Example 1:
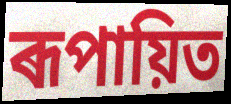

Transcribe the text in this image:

ৰূপায়িত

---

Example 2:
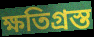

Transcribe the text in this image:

ক্ষতিগ্ৰস্ত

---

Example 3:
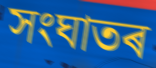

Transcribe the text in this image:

সংঘাতৰ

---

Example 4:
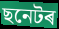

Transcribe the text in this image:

ছনেটৰ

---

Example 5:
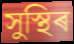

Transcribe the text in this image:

সুস্থিৰ